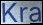
Kra